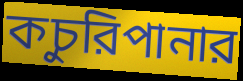
কচুরিপানার